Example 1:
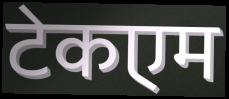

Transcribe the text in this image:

टेकएम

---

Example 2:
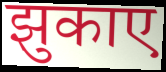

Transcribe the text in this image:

झुकाए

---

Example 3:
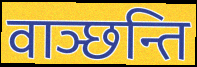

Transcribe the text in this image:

वाञ्छन्ति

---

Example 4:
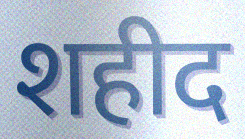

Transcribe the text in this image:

शहीद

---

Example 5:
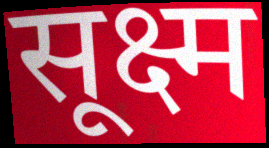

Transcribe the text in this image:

सूक्ष्म